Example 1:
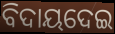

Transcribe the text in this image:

ବିଦାୟଦେଇ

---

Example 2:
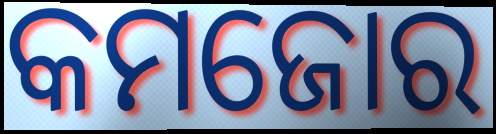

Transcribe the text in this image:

କମଜୋର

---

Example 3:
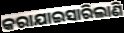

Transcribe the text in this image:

କରାଯାଇସାରିଲାଣି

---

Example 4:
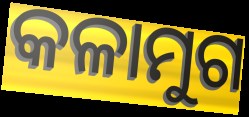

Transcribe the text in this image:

କଳାମୁଗ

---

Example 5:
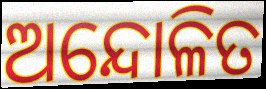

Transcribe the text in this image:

ଅନ୍ଦୋଳିତ